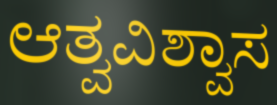
ಆತ್ವವಿಶ್ವಾಸ